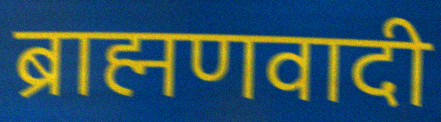
ब्राह्मणवादी